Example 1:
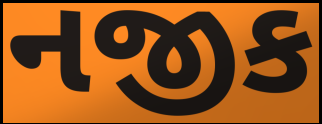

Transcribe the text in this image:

નજીક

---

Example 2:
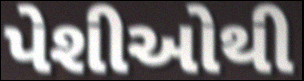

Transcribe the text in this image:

પેશીઓથી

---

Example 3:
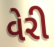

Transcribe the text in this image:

વેરી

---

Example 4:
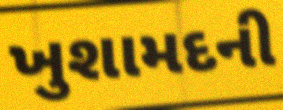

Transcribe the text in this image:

ખુશામદની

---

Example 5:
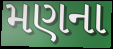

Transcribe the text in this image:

મણના